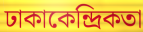
ঢাকাকেন্দ্রিকতা